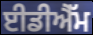
ਈਡੀਐੱਮ